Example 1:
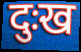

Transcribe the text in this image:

दुःख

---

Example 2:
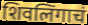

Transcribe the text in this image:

शिवलिंगाचं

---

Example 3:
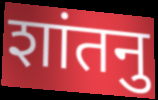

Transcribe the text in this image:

शांतनु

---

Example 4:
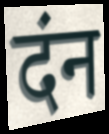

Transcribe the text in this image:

दंन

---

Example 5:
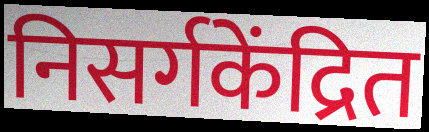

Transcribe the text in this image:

निसर्गकेंद्रित